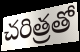
చరిత్రతో